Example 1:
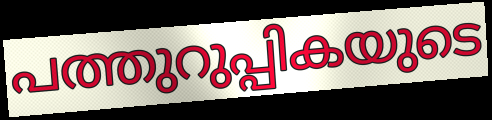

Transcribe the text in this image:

പത്തുറുപ്പികയുടെ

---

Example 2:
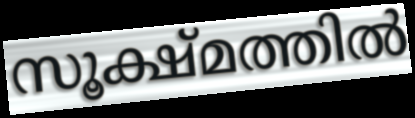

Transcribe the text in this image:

സൂക്ഷ്മത്തിൽ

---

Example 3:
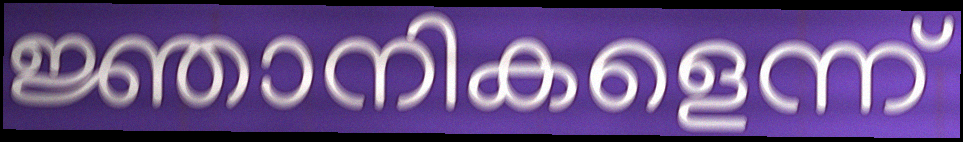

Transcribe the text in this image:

ജ്ഞാനികളെന്ന്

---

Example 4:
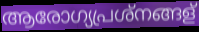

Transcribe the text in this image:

ആരോഗ്യപ്രശ്നങ്ങള്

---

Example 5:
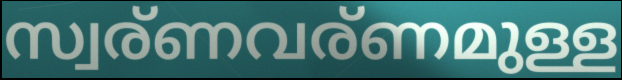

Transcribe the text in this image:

സ്വര്ണവര്ണമുള്ള